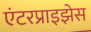
एंटरप्राइझेस